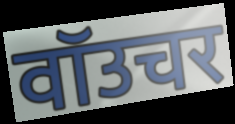
वॉउचर